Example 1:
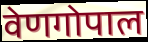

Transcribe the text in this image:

वेणगोपाल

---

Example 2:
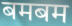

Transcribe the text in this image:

बमबम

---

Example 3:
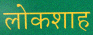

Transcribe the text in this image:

लोकशाह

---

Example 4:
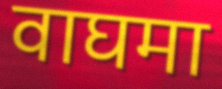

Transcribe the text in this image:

वाघमा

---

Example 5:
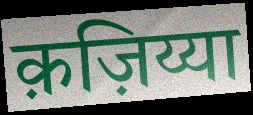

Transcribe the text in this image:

क़ज़िय्या